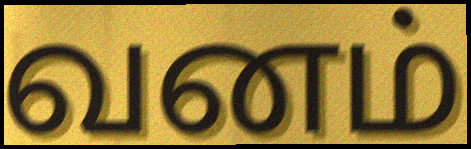
வனம்